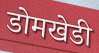
डोमखेडी